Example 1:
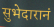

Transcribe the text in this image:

सुभेदारानं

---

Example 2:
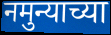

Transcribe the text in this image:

नमुन्याच्या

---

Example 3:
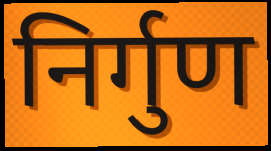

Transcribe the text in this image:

निर्गुण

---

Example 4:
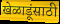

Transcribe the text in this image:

खेळाडूंसाठी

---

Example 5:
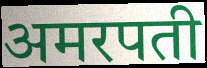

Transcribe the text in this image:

अमरपती